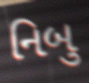
નિબુ